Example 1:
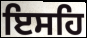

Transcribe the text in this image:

ਇਸਹਿ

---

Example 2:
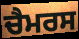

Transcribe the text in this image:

ਚੈਮਰਸ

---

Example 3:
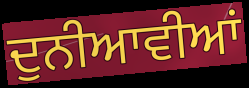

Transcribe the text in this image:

ਦੁਨੀਆਵੀਆਂ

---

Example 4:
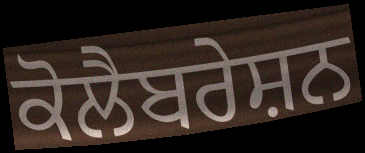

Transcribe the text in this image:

ਕੋਲੈਬਰੇਸ਼ਨ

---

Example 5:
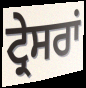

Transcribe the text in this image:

ਟ੍ਰੇਸਰਾਂ